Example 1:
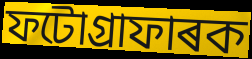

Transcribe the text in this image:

ফটোগ্ৰাফাৰক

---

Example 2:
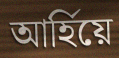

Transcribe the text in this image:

আৰ্হিয়ে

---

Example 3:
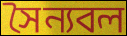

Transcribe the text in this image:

সৈন্যবল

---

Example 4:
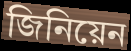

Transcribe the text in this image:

জিনিয়েন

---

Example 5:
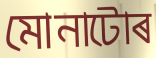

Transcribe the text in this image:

মোনাটোৰ